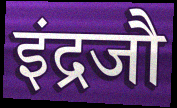
इंद्रजौ